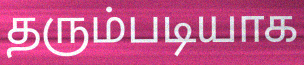
தரும்படியாக